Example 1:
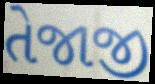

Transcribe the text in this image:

તેજાજી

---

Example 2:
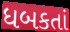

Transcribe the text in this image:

ધબકતાં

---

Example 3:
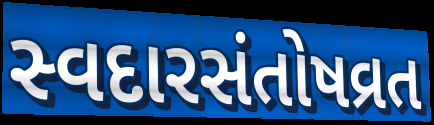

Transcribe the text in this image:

સ્વદારસંતોષવ્રત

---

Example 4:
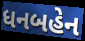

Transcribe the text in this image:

ધનબહેન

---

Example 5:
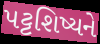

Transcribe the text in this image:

પટ્ટશિષ્યને